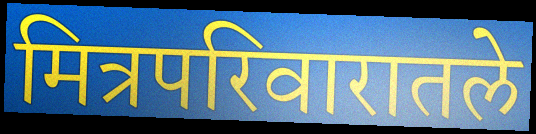
मित्रपरिवारातले